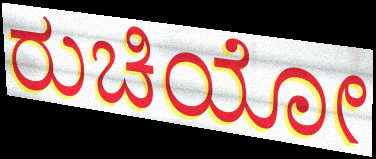
ರುಚಿಯೋ